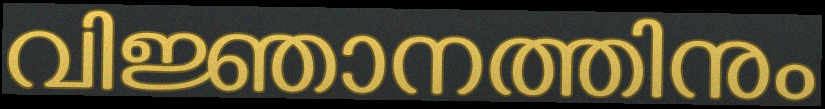
വിജ്ഞാനത്തിനും